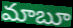
మాబూ